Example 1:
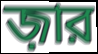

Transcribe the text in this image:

জ়ার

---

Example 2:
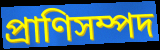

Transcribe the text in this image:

প্রাণিসম্পদ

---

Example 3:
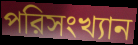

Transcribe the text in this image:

পরিসংখ্যান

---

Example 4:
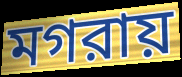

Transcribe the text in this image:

মগরায়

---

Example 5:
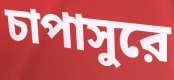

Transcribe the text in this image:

চাপাসুরে